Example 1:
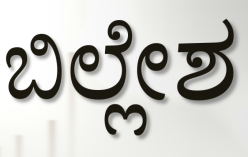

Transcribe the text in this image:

ಬಿಲ್ಲೇಶ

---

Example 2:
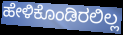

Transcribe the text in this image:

ಹೇಳಿಕೊಂಡಿರಲಿಲ್ಲ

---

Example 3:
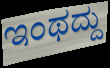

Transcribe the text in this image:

ಇಂಥದ್ದು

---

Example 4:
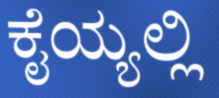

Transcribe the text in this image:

ಕೈಯ್ಯಲ್ಲಿ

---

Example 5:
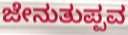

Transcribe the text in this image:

ಜೇನುತುಪ್ಪವ